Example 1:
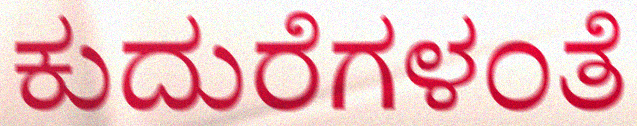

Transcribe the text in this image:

ಕುದುರೆಗಳಂತೆ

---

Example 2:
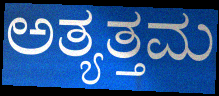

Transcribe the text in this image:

ಅತ್ಯತ್ತಮ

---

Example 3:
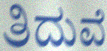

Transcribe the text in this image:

ತಿದುವೆ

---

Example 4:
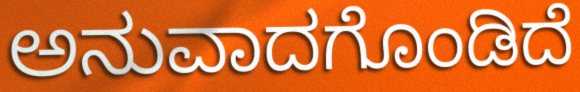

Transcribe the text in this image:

ಅನುವಾದಗೊಂಡಿದೆ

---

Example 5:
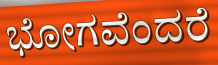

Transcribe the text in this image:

ಭೋಗವೆಂದರೆ